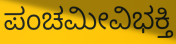
ಪಂಚಮೀವಿಭಕ್ತಿ